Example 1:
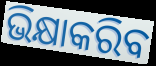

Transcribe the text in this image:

ଭିକ୍ଷାକରିବ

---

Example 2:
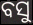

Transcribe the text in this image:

ବସୁ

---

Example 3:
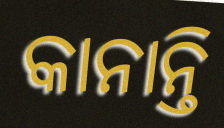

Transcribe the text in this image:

କାନାନ୍ତି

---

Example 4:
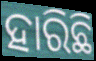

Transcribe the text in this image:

ହାରିଛି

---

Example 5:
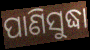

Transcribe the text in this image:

ପାଣିସୁଦ୍ଧା